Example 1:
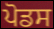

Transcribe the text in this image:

ਪੋਡਸ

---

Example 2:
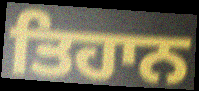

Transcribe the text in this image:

ਤਿਹਾਨ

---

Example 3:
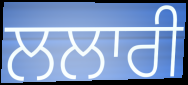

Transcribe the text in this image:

ਲਲਾਰੀ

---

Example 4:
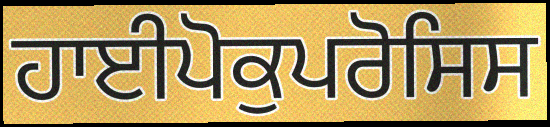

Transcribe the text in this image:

ਹਾਈਪੋਕੁਪਰੋਸਿਸ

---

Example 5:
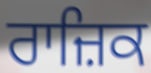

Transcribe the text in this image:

ਰਾਜ਼ਿਕ